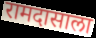
रामदासाला